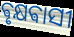
ଵୃକ୍ଷଵାସୀ